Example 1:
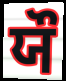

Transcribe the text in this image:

ਯੌ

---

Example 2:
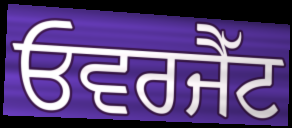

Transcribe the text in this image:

ਓਵਰਜੈੱਟ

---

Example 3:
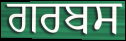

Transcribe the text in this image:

ਗਰਬਸ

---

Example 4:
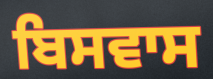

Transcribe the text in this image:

ਬਿਸਵਾਸ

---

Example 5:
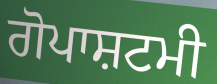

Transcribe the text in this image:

ਗੋਪਾਸ਼ਟਮੀ